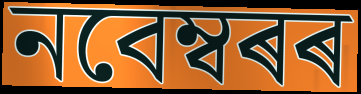
নবেম্বৰৰ